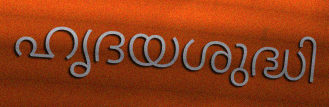
ഹൃദയശുദ്ധി